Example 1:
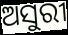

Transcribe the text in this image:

ଅସୁରୀ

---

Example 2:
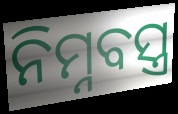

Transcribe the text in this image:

ନିମ୍ନବସ୍ତ୍ର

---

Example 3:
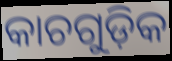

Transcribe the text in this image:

କାଚଗୁଡ଼ିକ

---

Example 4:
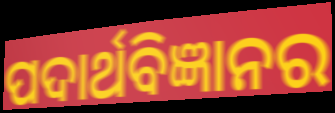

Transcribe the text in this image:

ପଦାର୍ଥବିଜ୍ଞାନର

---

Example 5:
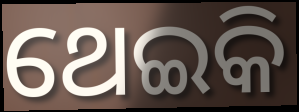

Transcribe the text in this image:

ଥେଇକି